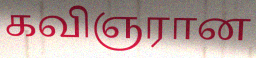
கவிஞரான